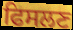
ਫਿਸਲਣ